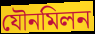
যৌনমিলন